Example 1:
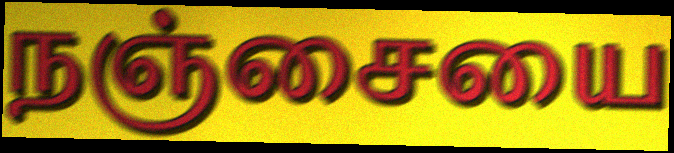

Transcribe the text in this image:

நஞ்சையை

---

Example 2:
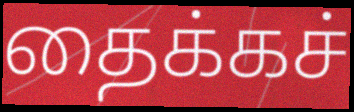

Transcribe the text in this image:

தைக்கச்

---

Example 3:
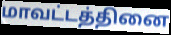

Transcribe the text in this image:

மாவட்டத்தினை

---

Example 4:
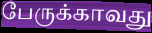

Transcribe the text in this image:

பேருக்காவது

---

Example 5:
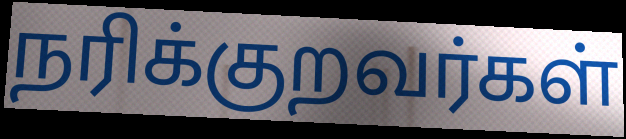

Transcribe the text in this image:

நரிக்குறவர்கள்